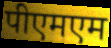
पीएमएम